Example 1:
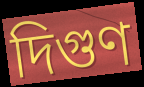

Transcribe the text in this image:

দিগুণ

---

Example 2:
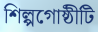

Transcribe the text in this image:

শিল্পগোষ্ঠীটি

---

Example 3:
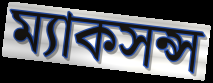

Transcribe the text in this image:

ম্যাকসন্স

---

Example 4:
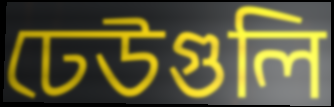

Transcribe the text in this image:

ঢেউগুলি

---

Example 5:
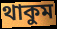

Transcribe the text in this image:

থাকুম